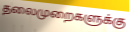
தலைமுறைகளுக்கு